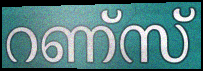
റണ്സ്